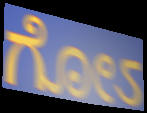
ಗೋಽ